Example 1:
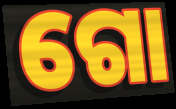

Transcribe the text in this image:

ଗୋ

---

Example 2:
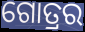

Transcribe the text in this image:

ଗୋତ୍ରର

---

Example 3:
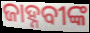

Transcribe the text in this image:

ଜାହ୍ନବୀଙ୍କ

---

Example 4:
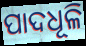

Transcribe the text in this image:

ପାଦଧୂଳି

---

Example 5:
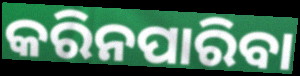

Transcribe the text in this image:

କରିନପାରିବା